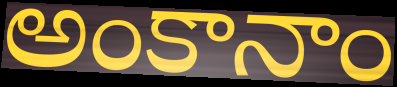
అంకానాం